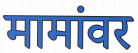
मामांवर